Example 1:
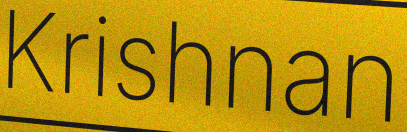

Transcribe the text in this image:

Krishnan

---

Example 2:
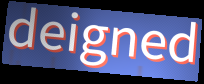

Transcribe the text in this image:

deigned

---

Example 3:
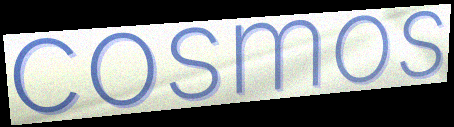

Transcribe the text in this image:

cosmos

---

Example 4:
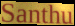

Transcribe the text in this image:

Santhu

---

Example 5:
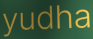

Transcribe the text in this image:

yudha